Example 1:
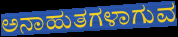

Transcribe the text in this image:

ಅನಾಹುತಗಳಾಗುವ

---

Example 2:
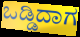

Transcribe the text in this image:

ಒಡ್ಡಿದಾಗ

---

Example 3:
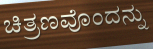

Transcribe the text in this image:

ಚಿತ್ರಣವೊಂದನ್ನು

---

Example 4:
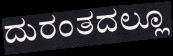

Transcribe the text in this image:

ದುರಂತದಲ್ಲೂ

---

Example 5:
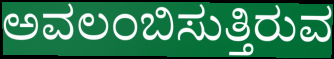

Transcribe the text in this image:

ಅವಲಂಬಿಸುತ್ತಿರುವ